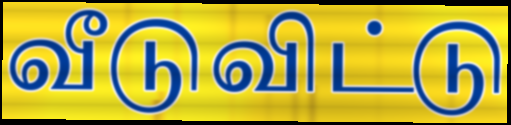
வீடுவிட்டு